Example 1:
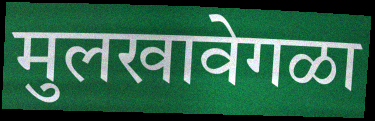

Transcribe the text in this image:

मुलखावेगळा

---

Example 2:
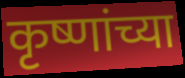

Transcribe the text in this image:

कृष्णांच्या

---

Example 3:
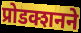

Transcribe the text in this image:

प्रोडक्शनने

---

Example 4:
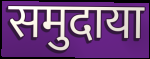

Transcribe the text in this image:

समुदाया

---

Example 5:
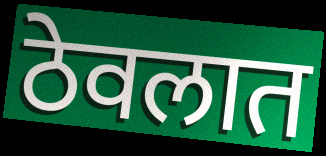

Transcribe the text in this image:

ठेवलात